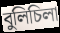
বুলিচিলা